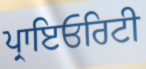
ਪ੍ਰਾਇਓਰਿਟੀ